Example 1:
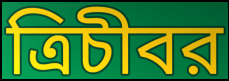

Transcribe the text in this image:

ত্রিচীবর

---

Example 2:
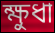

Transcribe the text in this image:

ক্ষুধা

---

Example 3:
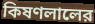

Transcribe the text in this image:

কিষণলালের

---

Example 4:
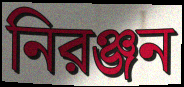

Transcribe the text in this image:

নিরঞ্জন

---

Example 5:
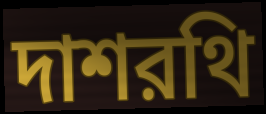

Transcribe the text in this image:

দাশরথি